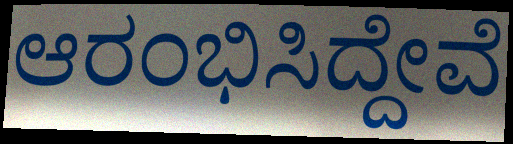
ಆರಂಭಿಸಿದ್ದೇವೆ